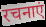
रचनाएं